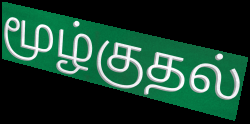
மூழ்குதல்